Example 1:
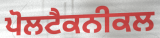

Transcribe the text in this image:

ਪੋਲਟੈਕਨੀਕਲ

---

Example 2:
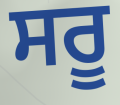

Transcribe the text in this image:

ਸਰੂ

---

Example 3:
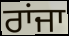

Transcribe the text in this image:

ਰਾਂਜਾ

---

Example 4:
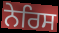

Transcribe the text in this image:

ਨੇਰਿਸ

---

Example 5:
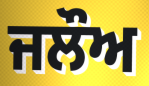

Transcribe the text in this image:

ਜਲੌਅ